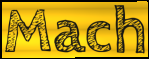
Mach